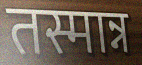
तस्मान्न